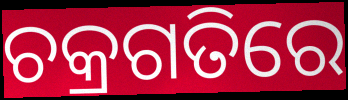
ଚକ୍ରଗତିରେ